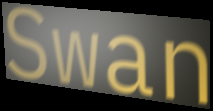
Swan